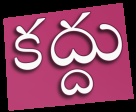
కద్దు